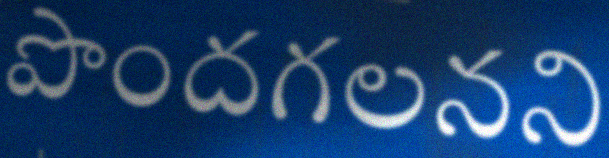
పొందగలనని